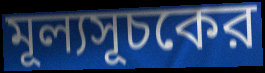
মূল্যসূচকের